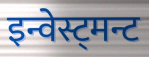
इन्वेस्ट्मन्ट